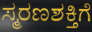
ಸ್ಮರಣಶಕ್ತಿಗೆ